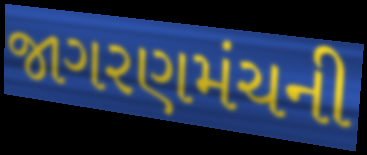
જાગરણમંચની